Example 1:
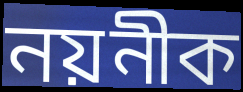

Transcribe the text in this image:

নয়নীক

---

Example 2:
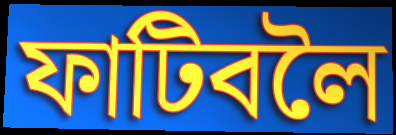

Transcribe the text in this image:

ফাটিবলৈ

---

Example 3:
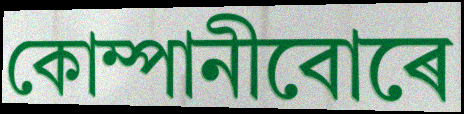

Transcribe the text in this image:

কোম্পানীবোৰে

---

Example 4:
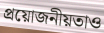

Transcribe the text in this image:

প্ৰয়োজনীয়তাও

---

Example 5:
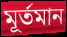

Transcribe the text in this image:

মূৰ্তমান